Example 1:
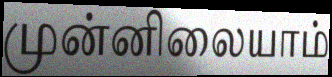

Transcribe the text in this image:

முன்னிலையாம்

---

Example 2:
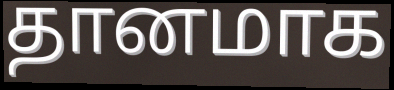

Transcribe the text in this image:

தானமாக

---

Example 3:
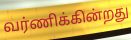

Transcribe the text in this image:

வர்ணிக்கின்றது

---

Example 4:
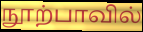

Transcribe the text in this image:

நூற்பாவில்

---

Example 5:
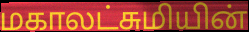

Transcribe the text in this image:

மகாலட்சுமியின்